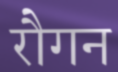
रौगन